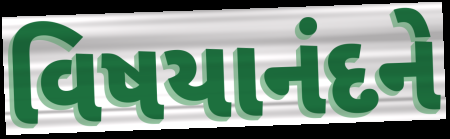
વિષયાનંદને